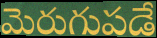
మెరుగుపడే